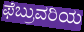
ಫೆಬ್ರುವರಿಯ